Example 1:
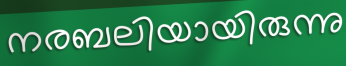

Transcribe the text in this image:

നരബലിയായിരുന്നു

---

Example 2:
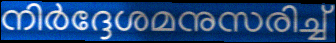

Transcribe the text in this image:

നിർദ്ദേശമനുസരിച്ച്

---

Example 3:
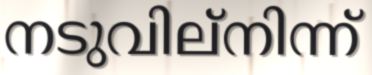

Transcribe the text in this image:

നടുവില്നിന്ന്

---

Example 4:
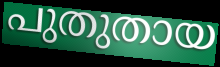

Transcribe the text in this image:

പുതുതായ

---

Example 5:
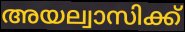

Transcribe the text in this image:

അയല്വാസിക്ക്